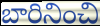
బారినించి